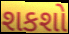
શકશો